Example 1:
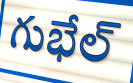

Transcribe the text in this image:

గుభేల్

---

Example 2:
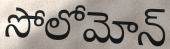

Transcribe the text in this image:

సోలోమోన్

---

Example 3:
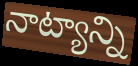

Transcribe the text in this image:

నాట్యాన్ని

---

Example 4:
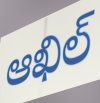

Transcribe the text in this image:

ఆఖిల్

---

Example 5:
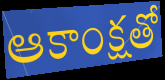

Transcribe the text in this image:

ఆకాంక్షతో